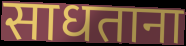
साधताना